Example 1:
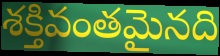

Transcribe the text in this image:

శక్తివంతమైనది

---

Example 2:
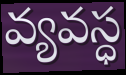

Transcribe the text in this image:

వ్యవస్ధ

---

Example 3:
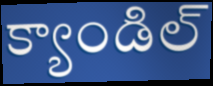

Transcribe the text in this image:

క్యాండిల్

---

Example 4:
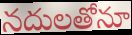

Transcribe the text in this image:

నదులతోనూ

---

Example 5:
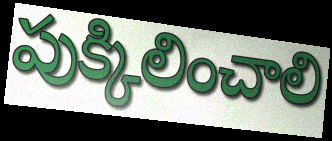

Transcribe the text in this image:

పుక్కిలించాలి